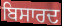
ਬਿਸਾਰਦ